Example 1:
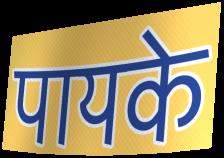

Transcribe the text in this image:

पायके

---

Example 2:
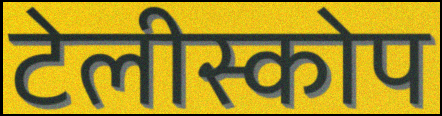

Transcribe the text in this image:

टेलीस्कोप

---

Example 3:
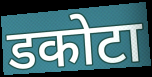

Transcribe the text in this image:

डकोटा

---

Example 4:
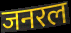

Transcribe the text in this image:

जनरल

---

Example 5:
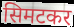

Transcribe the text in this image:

सिमटकर